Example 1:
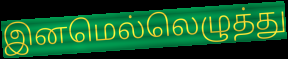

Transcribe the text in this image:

இனமெல்லெழுத்து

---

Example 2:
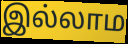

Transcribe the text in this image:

இல்லாம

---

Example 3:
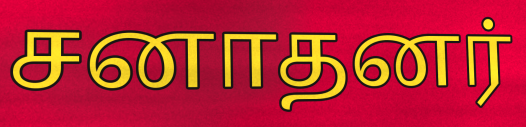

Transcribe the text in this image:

சனாதனர்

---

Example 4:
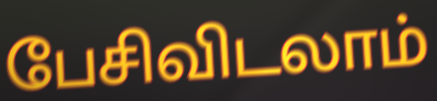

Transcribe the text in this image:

பேசிவிடலாம்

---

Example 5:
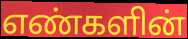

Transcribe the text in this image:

எண்களின்